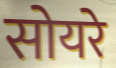
सोयरे